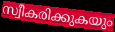
സ്വീകരിക്കുകയും